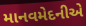
માનવમેદનીએ